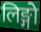
लिङ्गो